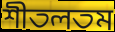
শীতলতম